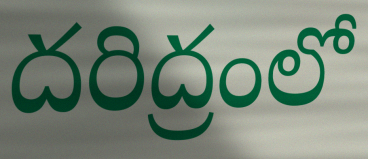
దరిద్రంలో